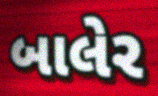
બાલેર